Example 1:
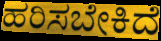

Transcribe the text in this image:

ಹರಿಸಬೇಕಿದೆ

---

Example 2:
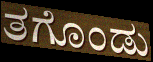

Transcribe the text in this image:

ತಗೊಂಡು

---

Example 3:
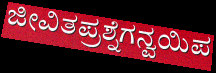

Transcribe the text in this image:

ಜೀವಿತಪ್ರಶ್ನೆಗನ್ವಯಿಪ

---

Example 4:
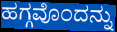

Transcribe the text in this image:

ಹಗ್ಗವೊಂದನ್ನು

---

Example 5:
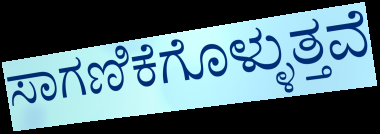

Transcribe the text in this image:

ಸಾಗಣಿಕೆಗೊಳ್ಳುತ್ತವೆ